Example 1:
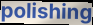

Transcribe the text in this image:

polishing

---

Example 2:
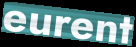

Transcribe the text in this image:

eurent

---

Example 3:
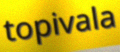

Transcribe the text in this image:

topivala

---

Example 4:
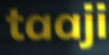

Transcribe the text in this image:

taaji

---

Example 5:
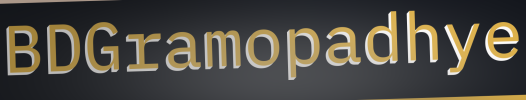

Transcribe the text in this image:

BDGramopadhye